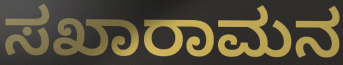
ಸಖಾರಾಮನ